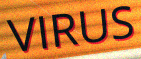
VIRUS